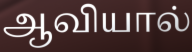
ஆவியால்